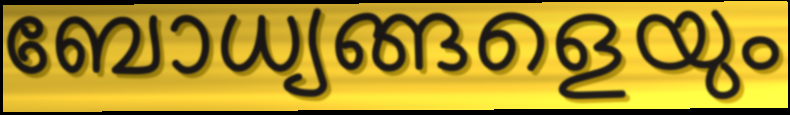
ബോധ്യങ്ങളെയും